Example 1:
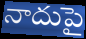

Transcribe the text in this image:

నాదుపై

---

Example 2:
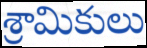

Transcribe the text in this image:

శ్రామికులు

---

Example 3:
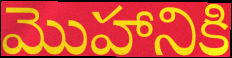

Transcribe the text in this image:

మొహానికి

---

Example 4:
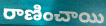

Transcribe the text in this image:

రాణించాయి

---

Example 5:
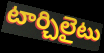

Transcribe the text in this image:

టార్చిలైటు